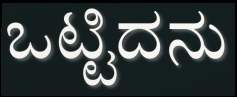
ಒಟ್ಟಿದನು